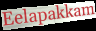
Eelapakkam